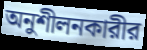
অনুশীলনকারীর